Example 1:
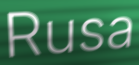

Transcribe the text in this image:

Rusa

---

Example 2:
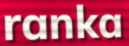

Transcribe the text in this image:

ranka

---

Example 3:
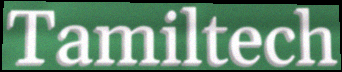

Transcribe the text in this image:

Tamiltech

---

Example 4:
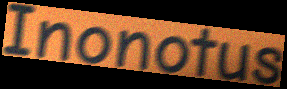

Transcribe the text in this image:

Inonotus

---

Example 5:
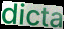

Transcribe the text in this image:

dicta